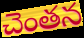
చెంతన